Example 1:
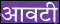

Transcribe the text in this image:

आवटी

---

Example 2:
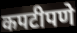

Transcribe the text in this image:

कपटीपणे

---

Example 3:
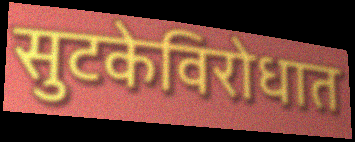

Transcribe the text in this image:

सुटकेविरोधात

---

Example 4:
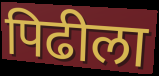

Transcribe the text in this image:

पिढीला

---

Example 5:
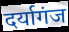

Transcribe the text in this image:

दर्यागंज